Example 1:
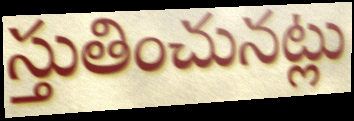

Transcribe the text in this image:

స్తుతించునట్లు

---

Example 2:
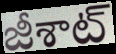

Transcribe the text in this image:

జీశాట్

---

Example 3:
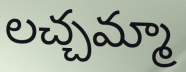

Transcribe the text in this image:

లచ్చమ్మా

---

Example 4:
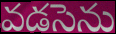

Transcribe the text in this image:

వడసెను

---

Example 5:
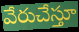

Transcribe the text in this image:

వేరుచేస్తూ